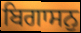
ਬਿਗਾਸਨੁ